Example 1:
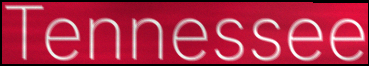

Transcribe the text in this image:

Tennessee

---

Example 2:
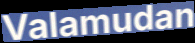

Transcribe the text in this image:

Valamudan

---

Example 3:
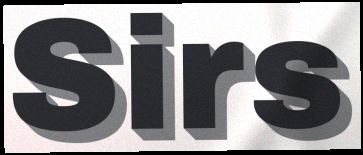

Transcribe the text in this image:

Sirs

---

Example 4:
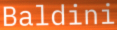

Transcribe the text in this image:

Baldini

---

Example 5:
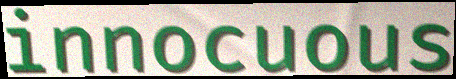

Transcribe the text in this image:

innocuous